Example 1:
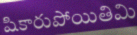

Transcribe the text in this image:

షికారుపోయితిమి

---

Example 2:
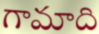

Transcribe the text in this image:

గామాది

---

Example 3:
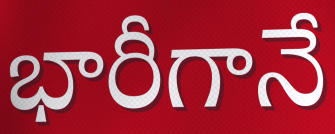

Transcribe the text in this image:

భారీగానే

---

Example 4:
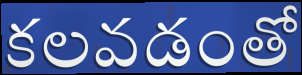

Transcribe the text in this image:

కలవడంతో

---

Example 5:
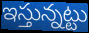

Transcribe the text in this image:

ఇస్తున్నట్టు